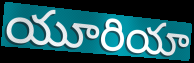
యూరియా